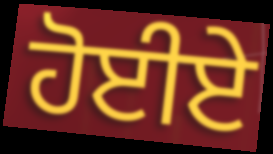
ਹੋਈਏ